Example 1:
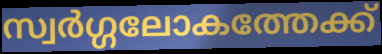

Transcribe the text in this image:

സ്വർഗ്ഗലോകത്തേക്ക്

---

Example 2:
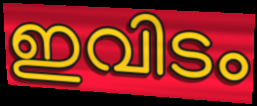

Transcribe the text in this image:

ഇവിടം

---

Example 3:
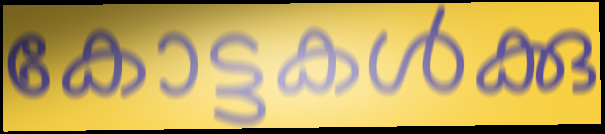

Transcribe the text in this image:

കോട്ടകൾക്കു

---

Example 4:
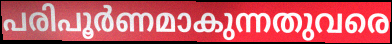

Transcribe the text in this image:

പരിപൂർണമാകുന്നതുവരെ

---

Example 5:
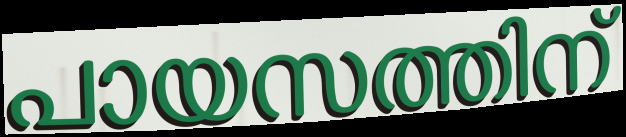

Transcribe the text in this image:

പായസത്തിന്